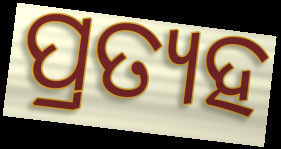
ପ୍ରତ୍ୟହ